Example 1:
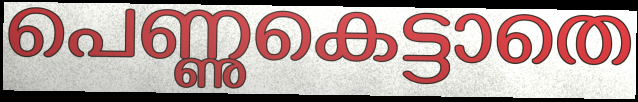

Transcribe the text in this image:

പെണ്ണുകെട്ടാതെ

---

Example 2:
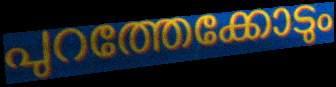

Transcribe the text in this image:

പുറത്തേക്കോടും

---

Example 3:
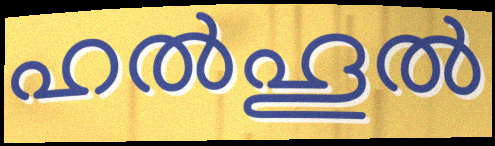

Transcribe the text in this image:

ഹൽഹൂൽ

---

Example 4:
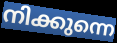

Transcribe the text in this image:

നിക്കുന്നെ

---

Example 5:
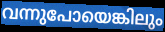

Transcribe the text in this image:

വന്നുപോയെങ്കിലും